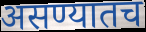
असण्यातच